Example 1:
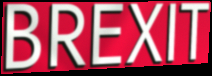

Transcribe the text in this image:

BREXIT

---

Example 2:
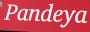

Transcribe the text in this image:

Pandeya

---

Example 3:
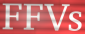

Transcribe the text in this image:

FFVs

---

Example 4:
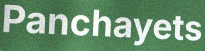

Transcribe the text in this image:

Panchayets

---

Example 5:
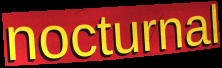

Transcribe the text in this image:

nocturnal